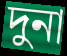
দুনা